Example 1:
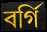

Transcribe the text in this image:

বর্গি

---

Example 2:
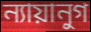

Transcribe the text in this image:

ন্যায়ানুগ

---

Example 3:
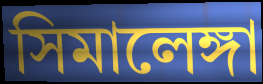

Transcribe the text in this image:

সিমালেঙ্গা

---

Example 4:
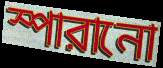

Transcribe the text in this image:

স্পারানো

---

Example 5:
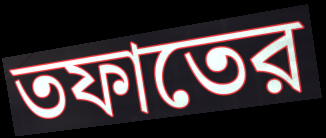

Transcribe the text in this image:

তফাতের